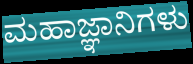
ಮಹಾಜ್ಞಾನಿಗಳು